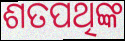
ଶତପଥିଙ୍କ